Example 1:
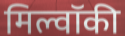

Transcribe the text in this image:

मिल्वॉकी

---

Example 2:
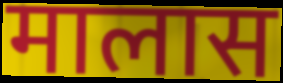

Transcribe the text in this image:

मालास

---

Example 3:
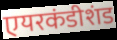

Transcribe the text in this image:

एयरकंडीशंड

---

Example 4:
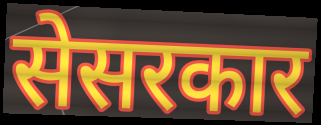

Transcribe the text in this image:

सेसरकार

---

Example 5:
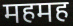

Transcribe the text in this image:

महमह